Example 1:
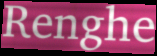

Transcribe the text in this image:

Renghe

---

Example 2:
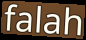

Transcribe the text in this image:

falah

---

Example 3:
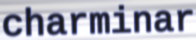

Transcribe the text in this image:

charminar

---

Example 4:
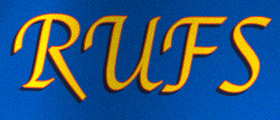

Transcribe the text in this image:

RUFS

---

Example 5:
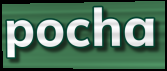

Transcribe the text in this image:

pocha